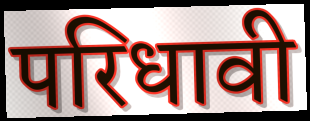
परिधावी